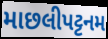
માછલીપટ્ટનમ